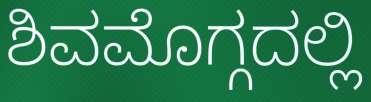
ಶಿವಮೊಗ್ಗದಲ್ಲಿ